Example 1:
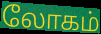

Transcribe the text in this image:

லோகம்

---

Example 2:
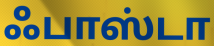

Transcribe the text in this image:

ஃபாஸ்டா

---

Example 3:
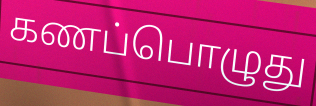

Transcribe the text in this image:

கணப்பொழுது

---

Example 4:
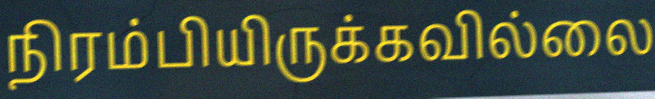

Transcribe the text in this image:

நிரம்பியிருக்கவில்லை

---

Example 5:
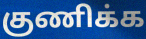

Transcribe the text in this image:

குணிக்க